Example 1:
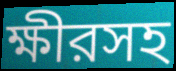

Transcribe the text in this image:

ক্ষীরসহ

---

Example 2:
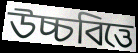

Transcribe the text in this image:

উচ্চবিত্তে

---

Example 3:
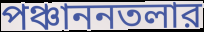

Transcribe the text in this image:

পঞ্চাননতলার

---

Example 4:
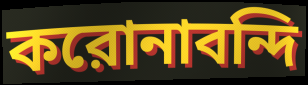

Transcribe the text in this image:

করোনাবন্দি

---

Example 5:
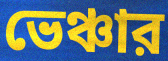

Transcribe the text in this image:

ভেঞ্চার